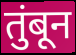
तुंबून